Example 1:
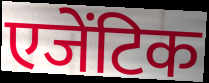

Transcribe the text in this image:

एजेंटिक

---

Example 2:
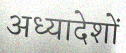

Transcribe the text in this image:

अध्यादेशों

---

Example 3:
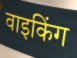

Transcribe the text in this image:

वाइकिंग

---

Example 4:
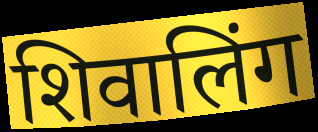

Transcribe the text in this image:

शिवालिंग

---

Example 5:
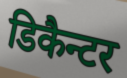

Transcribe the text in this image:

डिकैन्टर